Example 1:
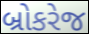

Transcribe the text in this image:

બ્રોકરેજ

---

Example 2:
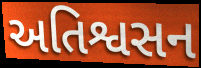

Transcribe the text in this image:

અતિશ્વસન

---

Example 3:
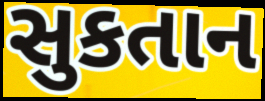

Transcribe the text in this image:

સુકતાન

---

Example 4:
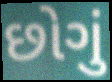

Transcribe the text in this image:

છોગું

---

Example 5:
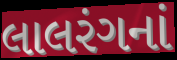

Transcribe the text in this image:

લાલરંગનાં